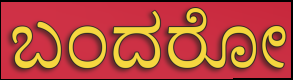
ಬಂದರೋ